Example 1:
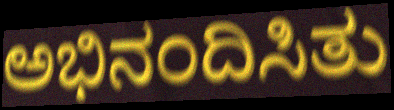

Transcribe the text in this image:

ಅಭಿನಂದಿಸಿತು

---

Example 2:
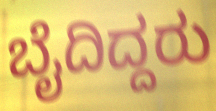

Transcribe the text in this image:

ಬೈದಿದ್ದರು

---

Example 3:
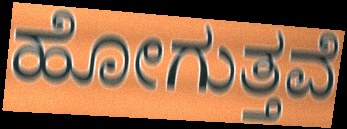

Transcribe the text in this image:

ಹೋಗುತ್ತವೆ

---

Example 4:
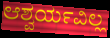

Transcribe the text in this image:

ಆಶ್ವರ್ಯವಿಲ್ಲ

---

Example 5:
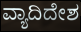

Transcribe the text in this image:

ವ್ಯಾದಿದೇಶ